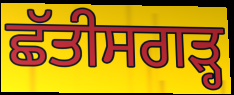
ਛੱਤੀਸਗੜ੍ਹ